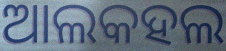
ଆଲକହଲ